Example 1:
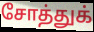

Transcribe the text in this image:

சோத்துக்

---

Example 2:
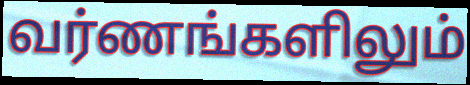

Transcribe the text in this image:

வர்ணங்களிலும்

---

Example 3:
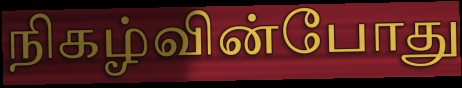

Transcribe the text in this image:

நிகழ்வின்போது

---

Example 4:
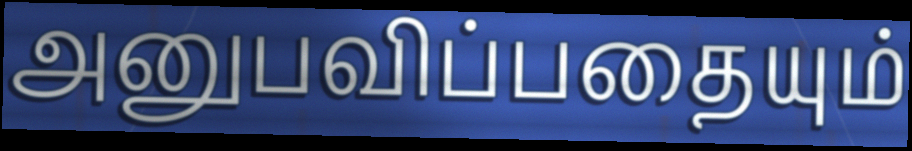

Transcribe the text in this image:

அனுபவிப்பதையும்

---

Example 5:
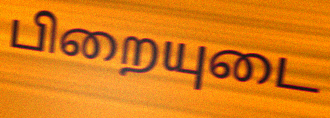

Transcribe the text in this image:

பிறையுடை